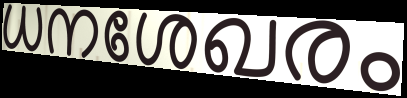
ധനശേഖരം